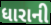
ધારાની